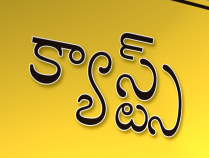
క్యాస్ట్స్